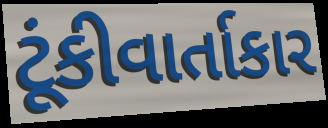
ટૂંકીવાર્તાકાર